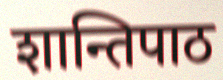
शान्तिपाठ